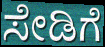
ಸೇಡಿಗೆ